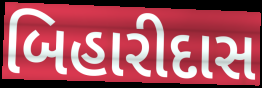
બિહારીદાસ